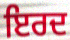
ਇਰਦ